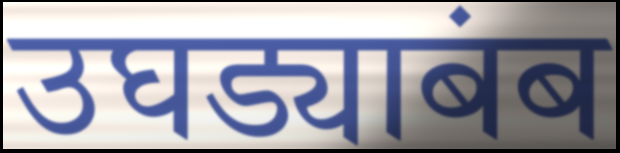
उघड्याबंब